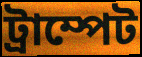
ট্ৰাম্পেট